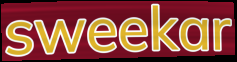
sweekar